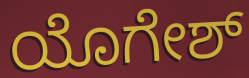
ಯೊಗೇಶ್